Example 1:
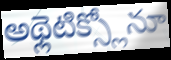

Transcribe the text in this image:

అథ్లెటిక్స్లోనూ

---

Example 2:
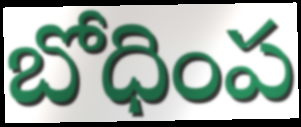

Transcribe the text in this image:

బోధింప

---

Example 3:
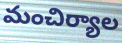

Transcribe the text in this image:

మంచిర్యాల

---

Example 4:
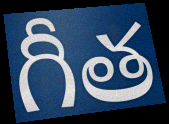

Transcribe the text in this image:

గీత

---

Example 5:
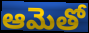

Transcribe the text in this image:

ఆమెతో